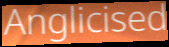
Anglicised